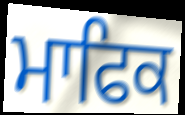
ਮਾਫਿਕ